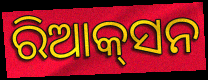
ରିଆକ୍‌ସନ